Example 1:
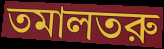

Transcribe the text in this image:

তমালতরু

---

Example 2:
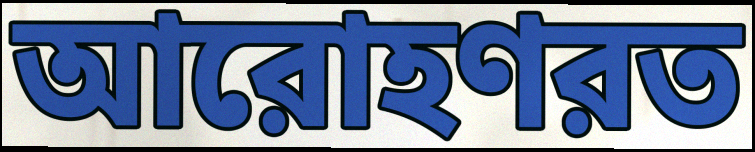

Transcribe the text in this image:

আরোহণরত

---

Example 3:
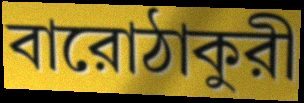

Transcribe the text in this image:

বারোঠাকুরী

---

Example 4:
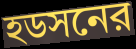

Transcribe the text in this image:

হডসনের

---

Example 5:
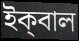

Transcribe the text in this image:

ইক্‌বাল